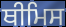
ਥੀਮਿਸ